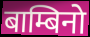
बाम्बिनो